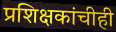
प्रशिक्षकांचीही